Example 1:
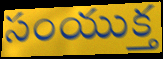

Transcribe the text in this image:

సంయుక్త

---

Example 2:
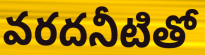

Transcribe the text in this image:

వరదనీటితో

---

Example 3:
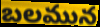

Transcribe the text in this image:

బలమున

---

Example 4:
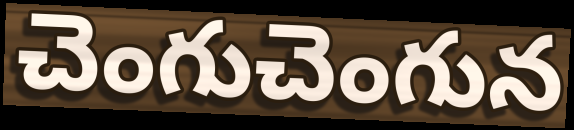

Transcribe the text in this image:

చెంగుచెంగున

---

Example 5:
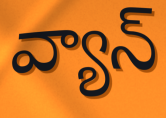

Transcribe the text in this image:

వ్యాన్